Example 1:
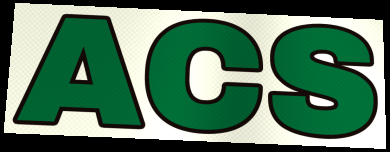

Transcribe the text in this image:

ACS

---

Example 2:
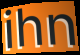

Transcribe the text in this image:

ihn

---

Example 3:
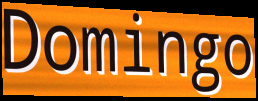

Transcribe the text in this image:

Domingo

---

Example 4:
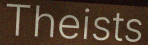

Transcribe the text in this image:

Theists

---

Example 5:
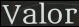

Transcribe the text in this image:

Valor